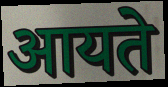
आयते